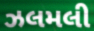
ઝલમલી